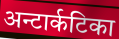
अन्टार्कटिका